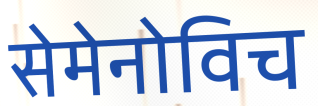
सेमेनोविच